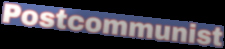
Postcommunist